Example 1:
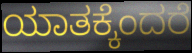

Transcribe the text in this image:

ಯಾತಕ್ಕೆಂದರೆ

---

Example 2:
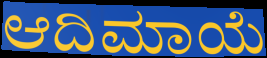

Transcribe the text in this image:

ಆದಿಮಾಯೆ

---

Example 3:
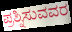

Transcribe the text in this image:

ಪ್ರಶ್ನಿಸುವವರ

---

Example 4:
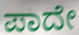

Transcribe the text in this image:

ಪಾದೇ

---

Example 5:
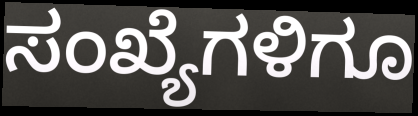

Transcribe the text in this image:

ಸಂಖ್ಯೆಗಳಿಗೂ